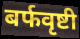
बर्फवृष्टी